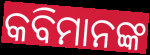
କବିମାନଙ୍କ